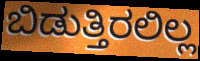
ಬಿಡುತ್ತಿರಲಿಲ್ಲ